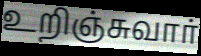
உறிஞ்சுவார்